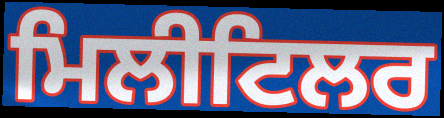
ਮਿਲੀਟਿਲਰ